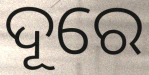
ଦୂରେ